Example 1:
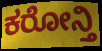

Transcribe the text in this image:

ಕರೋನ್ತಿ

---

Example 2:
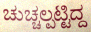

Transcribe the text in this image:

ಚುಚ್ಚಲ್ಪಟ್ಟಿದ್ದ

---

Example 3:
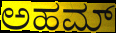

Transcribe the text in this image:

ಅಹಮ್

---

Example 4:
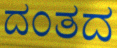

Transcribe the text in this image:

ದಂತದ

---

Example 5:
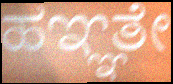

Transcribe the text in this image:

ಹಞ್ಞತೇ